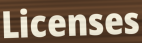
Licenses